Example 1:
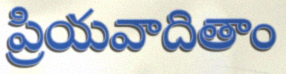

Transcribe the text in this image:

ప్రియవాదితాం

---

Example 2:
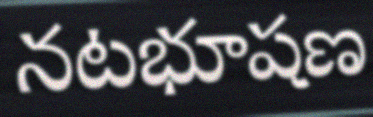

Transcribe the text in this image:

నటభూషణ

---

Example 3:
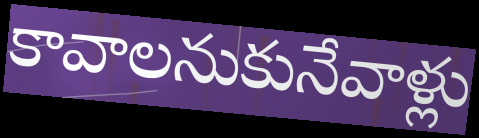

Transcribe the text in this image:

కావాలనుకునేవాళ్లు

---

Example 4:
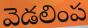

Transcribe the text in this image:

వెడలింప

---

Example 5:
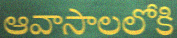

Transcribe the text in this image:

ఆవాసాలలోకి